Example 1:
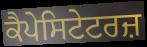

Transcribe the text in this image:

ਕੈਪੇਸਿਟੇਟਰਜ਼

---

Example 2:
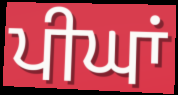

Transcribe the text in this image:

ਪੀਘਾਂ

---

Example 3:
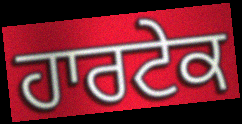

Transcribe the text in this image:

ਹਾਰਟੇਕ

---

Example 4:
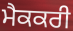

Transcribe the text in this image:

ਮੈਕਕਰੀ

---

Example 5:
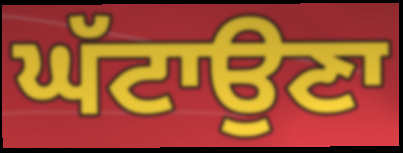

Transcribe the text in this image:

ਘੱਟਾਉਣਾ